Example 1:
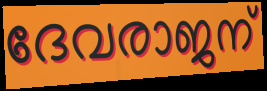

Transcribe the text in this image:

ദേവരാജന്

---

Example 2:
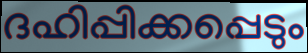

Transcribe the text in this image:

ദഹിപ്പിക്കപ്പെടും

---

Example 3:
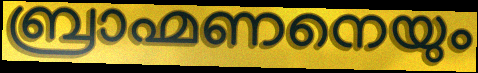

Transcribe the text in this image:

ബ്രാഹ്മണനെയും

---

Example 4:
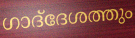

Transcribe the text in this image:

ഗാദ്‌ദേശത്തും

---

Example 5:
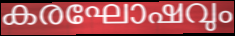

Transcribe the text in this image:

കരഘോഷവും